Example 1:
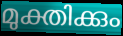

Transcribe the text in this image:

മുക്തിക്കും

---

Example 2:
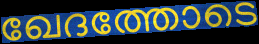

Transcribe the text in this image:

ഖേദത്തോടെ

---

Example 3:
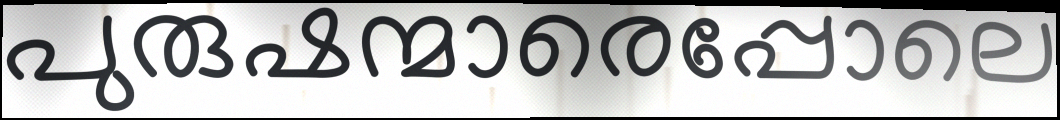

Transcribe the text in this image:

പുരുഷന്മാരെപ്പോലെ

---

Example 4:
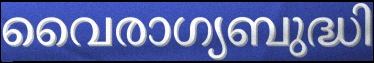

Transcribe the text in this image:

വൈരാഗ്യബുദ്ധി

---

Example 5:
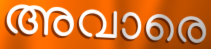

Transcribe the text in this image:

അവാരെ